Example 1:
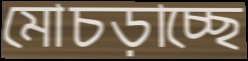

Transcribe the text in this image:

মোচড়াচ্ছে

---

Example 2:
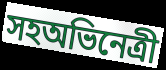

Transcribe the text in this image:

সহঅভিনেত্রী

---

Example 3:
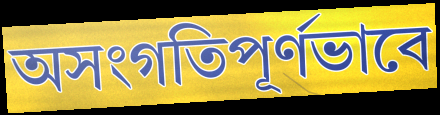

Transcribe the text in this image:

অসংগতিপূর্ণভাবে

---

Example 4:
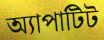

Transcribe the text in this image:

অ্যাপাটিট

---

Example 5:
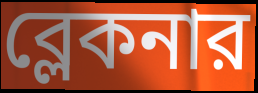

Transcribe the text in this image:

ব্লেকনার